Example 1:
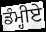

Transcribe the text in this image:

ਡੰਮ੍ਹੀਏ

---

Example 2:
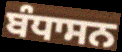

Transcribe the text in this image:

ਬੰਧਾਸਨ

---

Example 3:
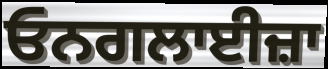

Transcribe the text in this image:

ਓਨਗਲਾਈਜ਼ਾ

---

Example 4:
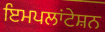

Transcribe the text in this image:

ਇਮਪਲਾਂਟੇਸ਼ਨ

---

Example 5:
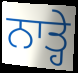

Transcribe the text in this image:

ਨਾਤ੍ਹੇ